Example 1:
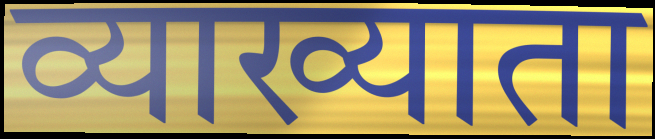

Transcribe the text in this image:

व्‍याख्‍याता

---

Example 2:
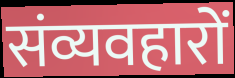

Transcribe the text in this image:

संव्‍यवहारों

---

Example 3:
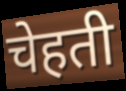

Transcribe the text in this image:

चेहती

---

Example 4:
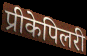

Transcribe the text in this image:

प्रीकेपिलरी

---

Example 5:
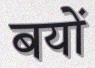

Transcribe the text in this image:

बयों